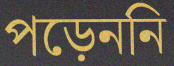
পড়েননি